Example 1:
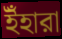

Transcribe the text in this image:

ইঁহারা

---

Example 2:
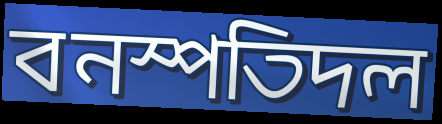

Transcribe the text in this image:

বনস্পতিদল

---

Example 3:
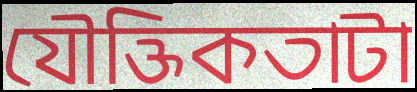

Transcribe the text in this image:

যৌক্তিকতাটা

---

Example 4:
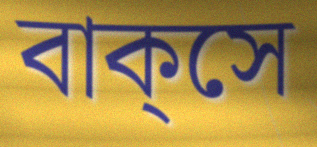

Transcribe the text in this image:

বাক্‌সে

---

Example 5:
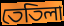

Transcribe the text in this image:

তেতিলা